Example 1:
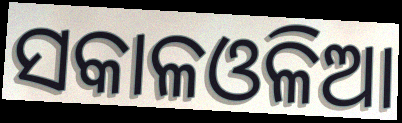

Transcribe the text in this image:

ସକାଳଓଳିଆ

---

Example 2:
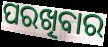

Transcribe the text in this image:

ପରଖିବାର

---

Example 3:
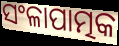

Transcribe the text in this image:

ସଂଳାପାତ୍ମକ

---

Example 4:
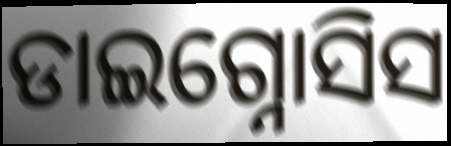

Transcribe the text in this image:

ଡାଇଗ୍ନୋସିସ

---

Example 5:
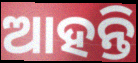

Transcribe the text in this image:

ଆହନ୍ତି